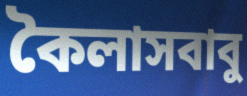
কৈলাসবাবু